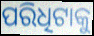
ପରିଧିଟାକୁ